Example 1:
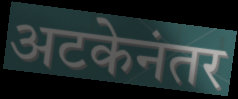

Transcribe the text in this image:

अटकेनंतर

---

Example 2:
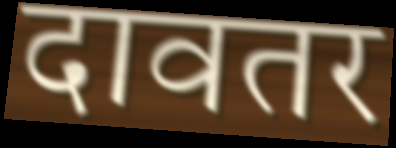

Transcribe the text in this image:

दावतर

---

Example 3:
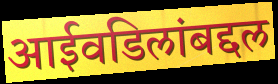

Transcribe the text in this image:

आईवडिलांबद्दल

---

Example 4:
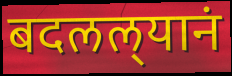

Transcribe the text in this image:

बदलल्यानं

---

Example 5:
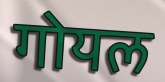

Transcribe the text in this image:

गोयल